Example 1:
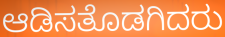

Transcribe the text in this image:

ಆಡಿಸತೊಡಗಿದರು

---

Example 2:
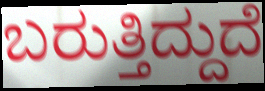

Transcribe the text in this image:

ಬರುತ್ತಿದ್ದುದೆ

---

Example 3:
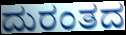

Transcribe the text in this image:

ದುರಂತದ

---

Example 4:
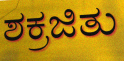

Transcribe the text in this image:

ಶಕ್ರಜಿತು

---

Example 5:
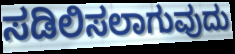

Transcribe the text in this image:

ಸಡಿಲಿಸಲಾಗುವುದು